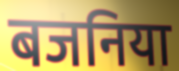
बजनिया